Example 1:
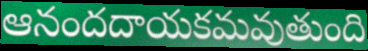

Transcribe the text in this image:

ఆనందదాయకమవుతుంది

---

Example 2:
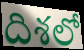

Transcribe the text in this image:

దిశలో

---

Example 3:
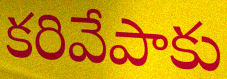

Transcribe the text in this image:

కరివేపాకు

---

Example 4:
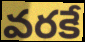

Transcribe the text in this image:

వరకే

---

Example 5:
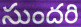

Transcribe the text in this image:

సుందరి